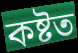
কষ্টত